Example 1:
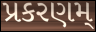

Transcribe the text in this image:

પ્રકરણમ્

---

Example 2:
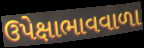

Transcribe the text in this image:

ઉપેક્ષાભાવવાળા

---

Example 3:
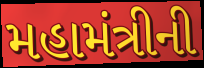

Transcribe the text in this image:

મહામંત્રીની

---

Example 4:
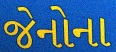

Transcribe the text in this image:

જેનોના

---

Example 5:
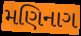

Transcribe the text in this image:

મણિનાગ